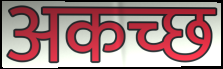
अकच्छ